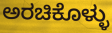
ಅರಚಿಕೊಳ್ಳು